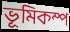
ভূমিকম্প